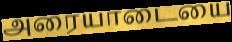
அரையாடையை